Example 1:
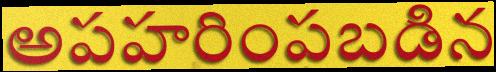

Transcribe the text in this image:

అపహరింపబడిన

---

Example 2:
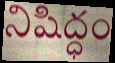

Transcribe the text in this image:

నిషిద్ధం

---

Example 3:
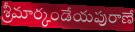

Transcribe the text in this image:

శ్రీమార్కండేయపురాణే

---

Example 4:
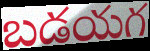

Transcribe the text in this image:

బడయగ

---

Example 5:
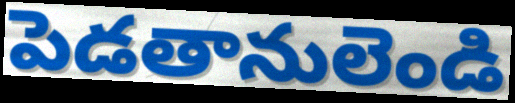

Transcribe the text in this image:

పెడతానులెండి